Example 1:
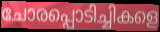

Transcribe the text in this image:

ചോരപ്പൊടിച്ചികളെ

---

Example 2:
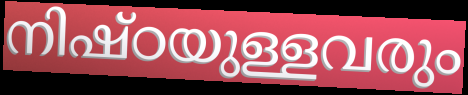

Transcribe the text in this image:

നിഷ്ഠയുള്ളവരും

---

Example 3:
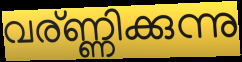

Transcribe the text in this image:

വര്ണ്ണിക്കുന്നു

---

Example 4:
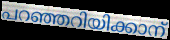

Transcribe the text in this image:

പറഞ്ഞറിയിക്കാന്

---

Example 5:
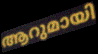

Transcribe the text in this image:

ആറുമായി